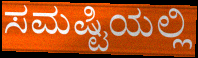
ಸಮಷ್ಟಿಯಲ್ಲಿ